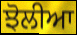
ਝੋਲੀਆ